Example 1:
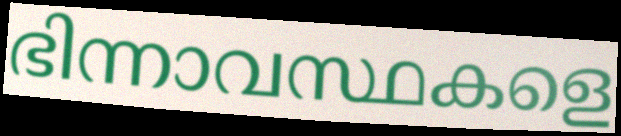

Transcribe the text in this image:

ഭിന്നാവസ്ഥകളെ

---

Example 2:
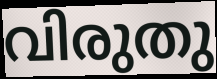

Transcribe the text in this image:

വിരുതു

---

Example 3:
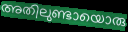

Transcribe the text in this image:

അതിലുണ്ടായൊരു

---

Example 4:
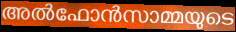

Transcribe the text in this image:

അൽഫോൻസാമ്മയുടെ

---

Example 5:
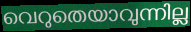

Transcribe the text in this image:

വെറുതെയാവുന്നില്ല